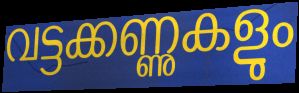
വട്ടക്കണ്ണുകളും